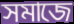
সমাজে